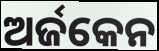
ଅର୍ଜକେନ